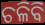
ଚଳିବି